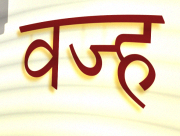
वज्ह